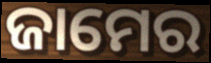
ଜାମେର